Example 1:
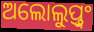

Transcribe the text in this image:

ଅଲୋଲୁପ୍ତ୍ୱଂ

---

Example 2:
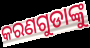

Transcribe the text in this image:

କରଣଗୁଡାଙ୍କୁ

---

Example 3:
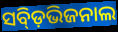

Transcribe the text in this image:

ସବ୍ଡ଼ିଭିଜନାଲ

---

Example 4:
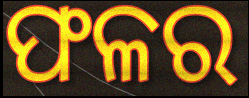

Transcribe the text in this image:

ଫଳର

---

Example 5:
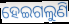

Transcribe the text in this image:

ହେଇଗଲୁଣି